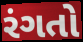
રંગતો